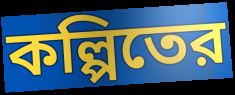
কল্পিতের